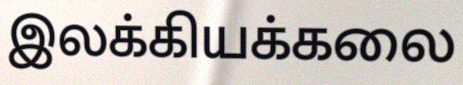
இலக்கியக்கலை